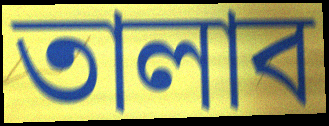
তালাব